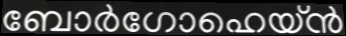
ബോർഗോഹെയ്ൻ